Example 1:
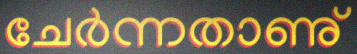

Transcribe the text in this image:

ചേർന്നതാണു്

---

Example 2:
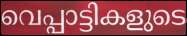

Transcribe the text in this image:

വെപ്പാട്ടികളുടെ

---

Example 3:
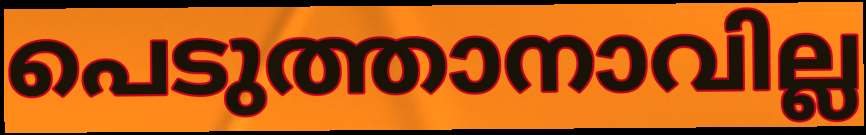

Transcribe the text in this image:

പെടുത്താനാവില്ല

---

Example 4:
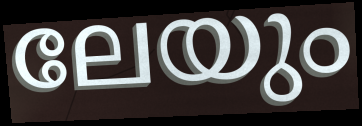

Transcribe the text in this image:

ലേയും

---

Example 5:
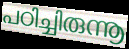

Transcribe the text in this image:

പഠിച്ചിരുന്നൂ